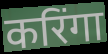
करिंगा